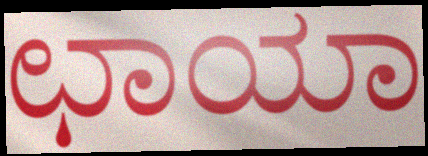
ಛಾಯಾ